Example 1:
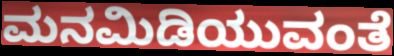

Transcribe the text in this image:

ಮನಮಿಡಿಯುವಂತೆ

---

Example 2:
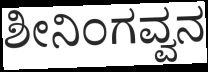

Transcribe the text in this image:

ಶೀನಿಂಗವ್ವನ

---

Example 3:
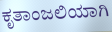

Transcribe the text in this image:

ಕೃತಾಂಜಲಿಯಾಗಿ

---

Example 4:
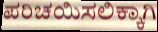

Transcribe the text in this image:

ಪರಿಚಯಿಸಲಿಕ್ಕಾಗಿ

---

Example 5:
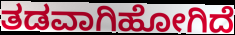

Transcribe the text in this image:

ತಡವಾಗಿಹೋಗಿದೆ